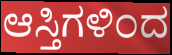
ಆಸ್ತಿಗಳಿಂದ